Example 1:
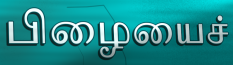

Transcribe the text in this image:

பிழையைச்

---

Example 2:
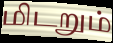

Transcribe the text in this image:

மிடறும்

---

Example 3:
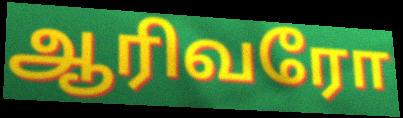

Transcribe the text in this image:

ஆரிவரோ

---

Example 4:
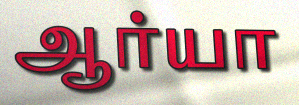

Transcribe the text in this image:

ஆர்யா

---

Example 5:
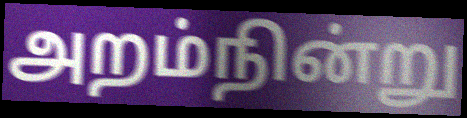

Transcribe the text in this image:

அறம்நின்று